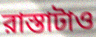
রাস্তাটাও